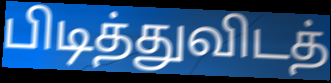
பிடித்துவிடத்